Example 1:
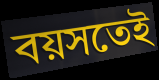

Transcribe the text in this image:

বয়সতেই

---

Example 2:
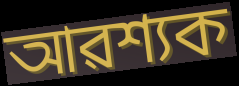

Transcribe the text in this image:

আৱশ্যক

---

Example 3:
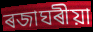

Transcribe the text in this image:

ৰজাঘৰীয়া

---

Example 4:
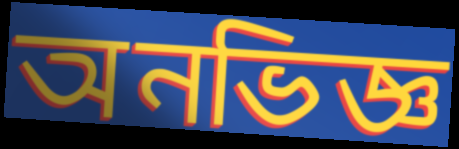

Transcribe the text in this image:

অনভিজ্ঞ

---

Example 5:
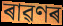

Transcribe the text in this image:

ৰাৱণৰ